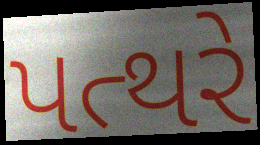
પત્થરે